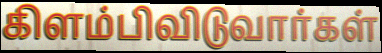
கிளம்பிவிடுவார்கள்